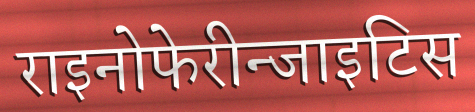
राइनोफेरीन्जाइटिस